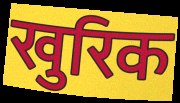
खुरिक